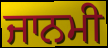
ਜਾਨਮੀ